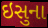
ઇસુના